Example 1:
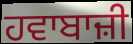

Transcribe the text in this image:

ਹਵਾਬਾਜ਼ੀ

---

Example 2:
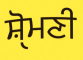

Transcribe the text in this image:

ਸ਼ੑੋਮਣੀ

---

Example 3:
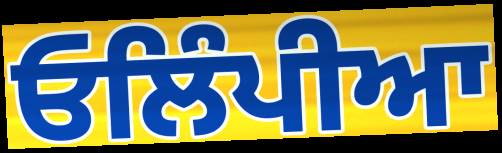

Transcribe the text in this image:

ਓਲਿੰਪੀਆ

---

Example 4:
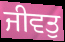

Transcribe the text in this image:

ਜੀਵਤੁ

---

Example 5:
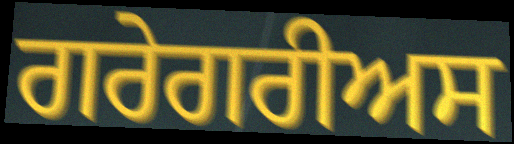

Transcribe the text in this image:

ਗਰੇਗਰੀਅਸ